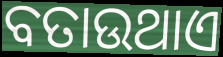
ବତାଉଥାଏ